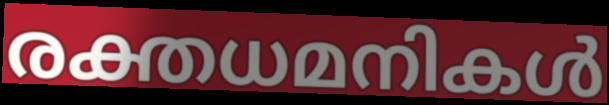
രക്തധമനികൾ